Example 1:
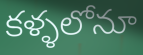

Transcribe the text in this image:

కళ్ళలోనూ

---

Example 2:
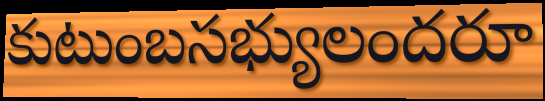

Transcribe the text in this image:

కుటుంబసభ్యులందరూ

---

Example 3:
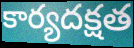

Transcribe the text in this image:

కార్యదక్షత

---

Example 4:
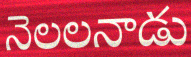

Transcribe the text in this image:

నెలలనాడు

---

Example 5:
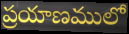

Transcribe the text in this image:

ప్రయాణములో